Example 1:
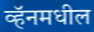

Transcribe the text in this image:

व्हॅनमधील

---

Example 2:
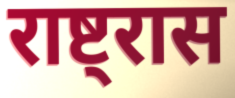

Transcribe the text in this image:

राष्ट्रास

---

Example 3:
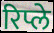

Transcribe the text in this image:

रिप्ले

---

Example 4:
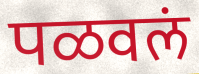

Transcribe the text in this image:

पळवलं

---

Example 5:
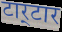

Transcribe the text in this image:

टार्टार